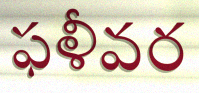
ఫళీవర